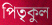
পিতৃকুল